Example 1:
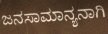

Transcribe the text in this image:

ಜನಸಾಮಾನ್ಯನಾಗಿ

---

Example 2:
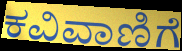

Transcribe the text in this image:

ಕವಿವಾಣಿಗೆ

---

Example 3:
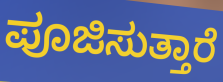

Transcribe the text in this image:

ಪೂಜಿಸುತ್ತಾರೆ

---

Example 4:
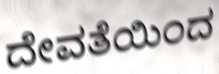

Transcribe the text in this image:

ದೇವತೆಯಿಂದ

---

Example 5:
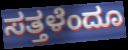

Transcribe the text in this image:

ಸತ್ತಳೆಂದೂ